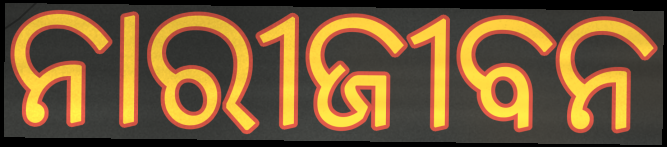
ନାରୀଜୀବନ